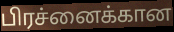
பிரச்னைக்கான